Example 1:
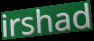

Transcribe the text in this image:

irshad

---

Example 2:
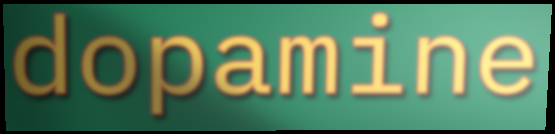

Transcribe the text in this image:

dopamine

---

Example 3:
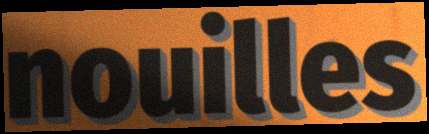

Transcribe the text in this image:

nouilles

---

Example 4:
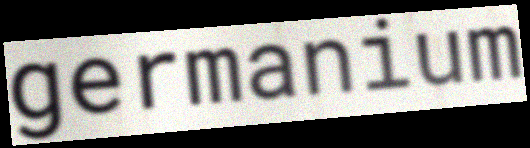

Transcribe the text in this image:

germanium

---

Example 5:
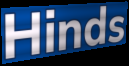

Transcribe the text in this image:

Hinds